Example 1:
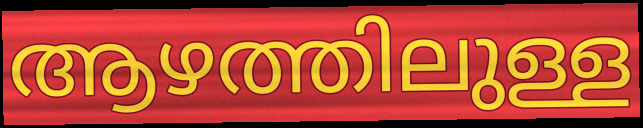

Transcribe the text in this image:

ആഴത്തിലുള്ള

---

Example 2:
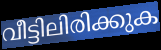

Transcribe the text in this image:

വീട്ടിലിരിക്കുക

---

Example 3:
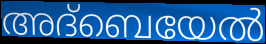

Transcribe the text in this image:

അദ്ബെയേൽ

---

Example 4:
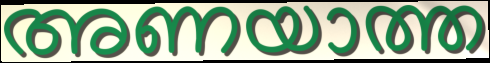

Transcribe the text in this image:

അണയാത്ത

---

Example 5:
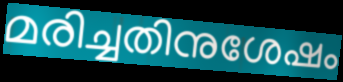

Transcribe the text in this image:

മരിച്ചതിനുശേഷം